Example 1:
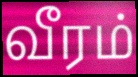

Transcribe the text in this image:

வீரம்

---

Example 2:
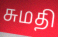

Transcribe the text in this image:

சுமதி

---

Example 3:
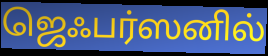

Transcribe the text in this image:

ஜெஃபர்ஸனில்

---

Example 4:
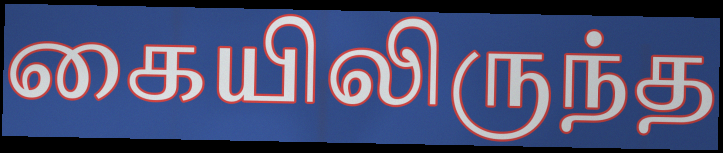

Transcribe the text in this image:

கையிலிருந்த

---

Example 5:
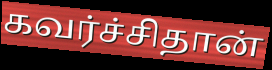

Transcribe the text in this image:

கவர்ச்சிதான்